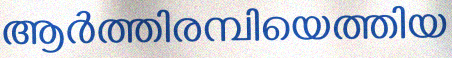
ആർത്തിരമ്പിയെത്തിയ